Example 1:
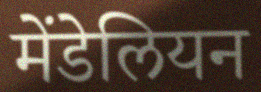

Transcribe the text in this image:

मेंडेलियन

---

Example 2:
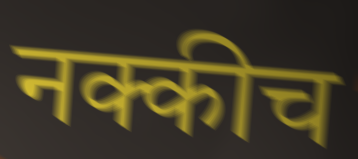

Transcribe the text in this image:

नक्कीच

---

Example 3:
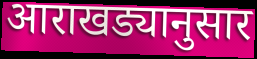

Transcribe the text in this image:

आराखड्यानुसार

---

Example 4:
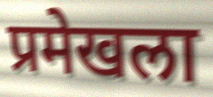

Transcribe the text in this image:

प्रमेखला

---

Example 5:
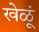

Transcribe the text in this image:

खेळूं